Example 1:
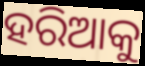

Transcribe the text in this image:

ହରିଆକୁ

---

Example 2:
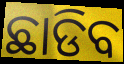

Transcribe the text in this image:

ଛାଡିବ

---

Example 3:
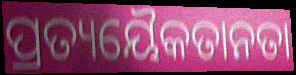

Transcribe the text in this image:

ପ୍ରତ୍ୟୟୈକତାନତା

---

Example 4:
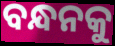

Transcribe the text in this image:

ବନ୍ଧନକୁ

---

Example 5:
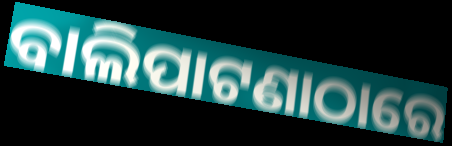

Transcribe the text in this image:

ବାଲିପାଟଣାଠାରେ